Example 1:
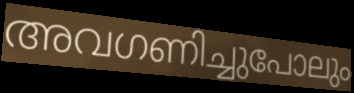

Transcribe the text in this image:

അവഗണിച്ചുപോലും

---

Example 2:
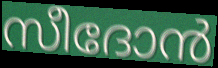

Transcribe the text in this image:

സീദോൻ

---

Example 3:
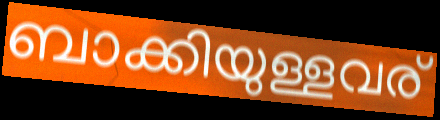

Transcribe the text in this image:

ബാക്കിയുള്ളവര്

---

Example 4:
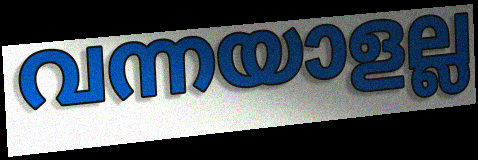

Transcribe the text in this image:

വന്നയാളല്ല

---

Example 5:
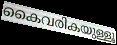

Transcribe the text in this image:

കൈവരികയുള്ളൂ